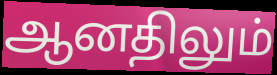
ஆனதிலும்